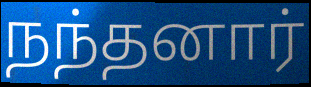
நந்தனார்